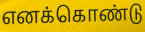
எனக்கொண்டு